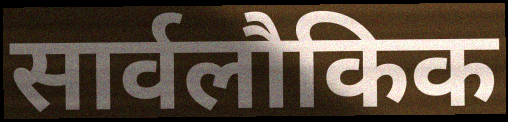
सार्वलौकिक